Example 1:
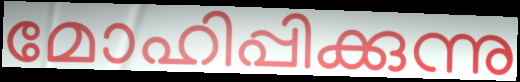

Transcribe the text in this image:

മോഹിപ്പിക്കുന്നു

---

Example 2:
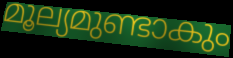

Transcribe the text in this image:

മൂല്യമുണ്ടാകും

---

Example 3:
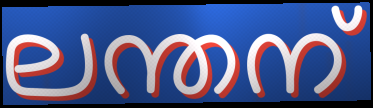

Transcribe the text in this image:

ലന്തന്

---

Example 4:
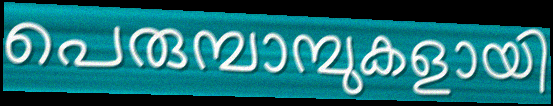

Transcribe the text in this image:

പെരുമ്പാമ്പുകളായി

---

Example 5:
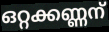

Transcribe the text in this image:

ഒറ്റക്കണ്ണന്